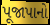
પૂજાપાનો